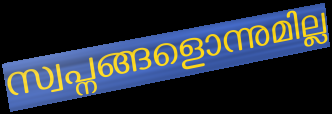
സ്വപ്നങ്ങളൊന്നുമില്ല